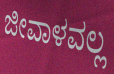
ಜೀವಾಳವಲ್ಲ